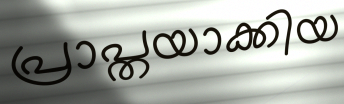
പ്രാപ്തയാക്കിയ